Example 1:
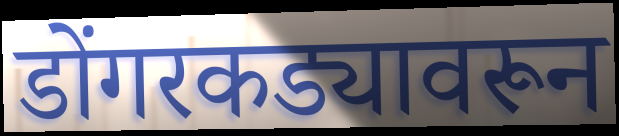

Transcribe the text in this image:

डोंगरकड्यावरून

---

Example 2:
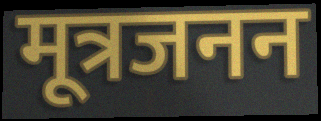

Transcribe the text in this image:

मूत्रजनन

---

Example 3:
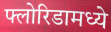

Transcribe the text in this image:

फ्लोरिडामध्ये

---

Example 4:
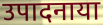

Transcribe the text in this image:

उपादनाया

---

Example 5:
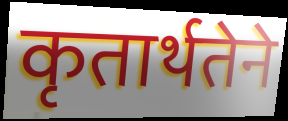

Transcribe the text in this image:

कृतार्थतेने